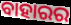
ବାହାରର